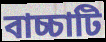
বাচ্চাটি